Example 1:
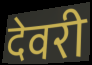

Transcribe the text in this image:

देवरी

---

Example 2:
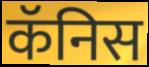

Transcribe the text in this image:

कॅनिस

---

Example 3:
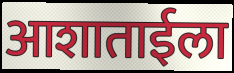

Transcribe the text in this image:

आशाताईला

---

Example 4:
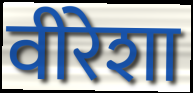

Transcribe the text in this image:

वीरेशा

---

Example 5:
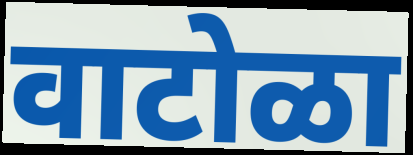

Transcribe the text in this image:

वाटोळा